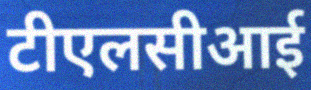
टीएलसीआई